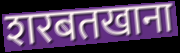
शरबतखाना